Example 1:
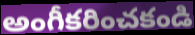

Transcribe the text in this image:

అంగీకరించకండి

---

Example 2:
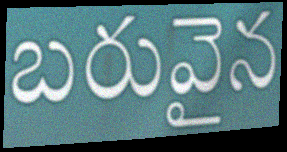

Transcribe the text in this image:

బరువైన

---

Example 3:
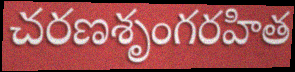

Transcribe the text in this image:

చరణశృంగరహిత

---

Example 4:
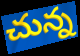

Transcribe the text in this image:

చున్న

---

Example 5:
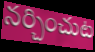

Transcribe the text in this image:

నర్చించుట